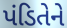
પંડિતેને